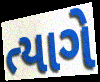
ત્યાગે